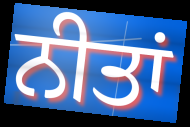
ਨੀਤਾਂ